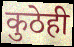
कुठेही